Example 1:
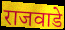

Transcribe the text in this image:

राजवाडे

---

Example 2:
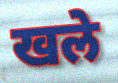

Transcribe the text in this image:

खले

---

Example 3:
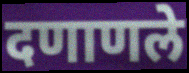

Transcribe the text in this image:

दणाणले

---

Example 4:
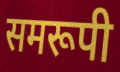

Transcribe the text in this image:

समरूपी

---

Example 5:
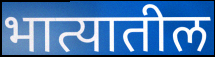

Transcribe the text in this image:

भात्यातील